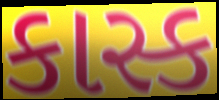
કાસ્ક